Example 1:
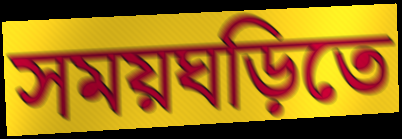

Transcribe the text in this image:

সময়ঘড়িতে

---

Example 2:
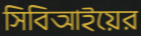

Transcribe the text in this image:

সিবিআইয়ের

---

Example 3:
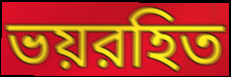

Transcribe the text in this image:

ভয়রহিত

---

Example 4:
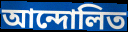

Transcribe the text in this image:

আন্দোলিত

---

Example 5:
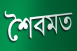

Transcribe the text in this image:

শৈবমত